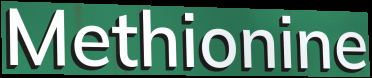
Methionine